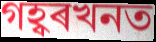
গহ্বৰখনত